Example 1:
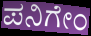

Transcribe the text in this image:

ಪನಿಗೇಂ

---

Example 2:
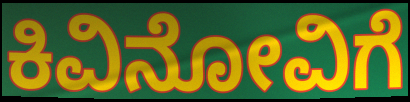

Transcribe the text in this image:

ಕಿವಿನೋವಿಗೆ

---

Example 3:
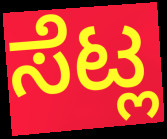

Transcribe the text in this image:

ಸೆಟ್ಲ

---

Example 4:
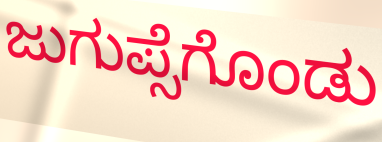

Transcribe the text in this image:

ಜುಗುಪ್ಸೆಗೊಂಡು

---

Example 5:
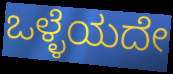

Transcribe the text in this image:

ಒಳ್ಳೆಯದೇ